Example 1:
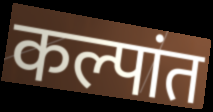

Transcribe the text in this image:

कल्पांत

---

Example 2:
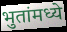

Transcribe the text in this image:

भुतांमध्ये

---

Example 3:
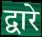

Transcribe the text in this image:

द्वारे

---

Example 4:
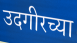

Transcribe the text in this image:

उदगीरच्या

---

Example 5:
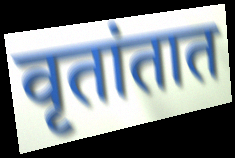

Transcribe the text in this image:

वृतांतात